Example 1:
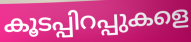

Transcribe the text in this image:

കൂടപ്പിറപ്പുകളെ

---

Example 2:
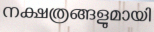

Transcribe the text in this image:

നക്ഷത്രങ്ങളുമായി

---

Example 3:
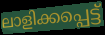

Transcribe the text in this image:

ലാളിക്കപ്പെട്ട്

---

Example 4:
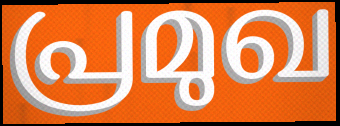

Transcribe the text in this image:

പ്രമുഖ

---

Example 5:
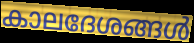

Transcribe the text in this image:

കാലദേശങ്ങൾ